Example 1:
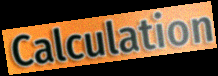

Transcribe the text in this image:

Calculation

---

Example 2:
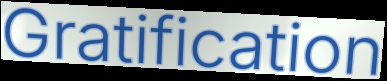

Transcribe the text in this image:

Gratification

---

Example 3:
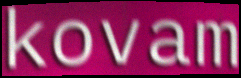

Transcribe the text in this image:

kovam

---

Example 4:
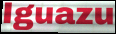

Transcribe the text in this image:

Iguazu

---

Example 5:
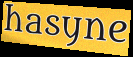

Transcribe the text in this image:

hasyne